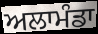
ਅਲਾਮੰਡਾ